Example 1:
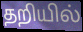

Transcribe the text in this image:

தறியில்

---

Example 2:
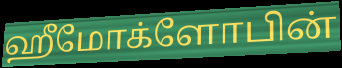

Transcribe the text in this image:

ஹீமோக்ளோபின்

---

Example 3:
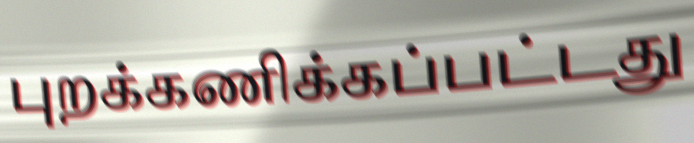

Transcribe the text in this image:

புறக்கணிக்கப்பட்டது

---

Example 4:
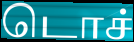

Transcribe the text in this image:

டொச்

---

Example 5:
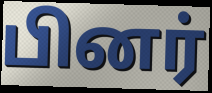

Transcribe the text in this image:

பினர்